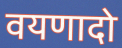
वयणादो